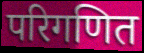
परिगणित